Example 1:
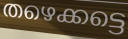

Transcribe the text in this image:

തഴെക്കട്ടെ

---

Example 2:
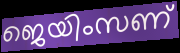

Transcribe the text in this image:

ജെയിംസണ്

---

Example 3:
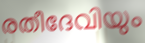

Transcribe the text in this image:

രതീദേവിയും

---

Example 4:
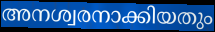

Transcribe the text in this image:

അനശ്വരനാക്കിയതും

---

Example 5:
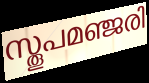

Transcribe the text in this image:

സ്തൂപമഞ്ജരി